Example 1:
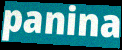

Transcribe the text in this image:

panina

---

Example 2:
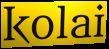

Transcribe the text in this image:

kolai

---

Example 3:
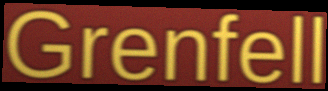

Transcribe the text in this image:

Grenfell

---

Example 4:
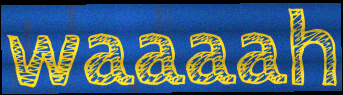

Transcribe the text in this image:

waaaah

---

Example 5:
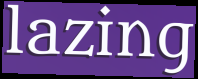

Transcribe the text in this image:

lazing